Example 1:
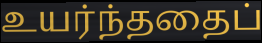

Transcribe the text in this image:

உயர்ந்ததைப்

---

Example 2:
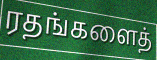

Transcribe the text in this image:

ரதங்களைத்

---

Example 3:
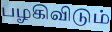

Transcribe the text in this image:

பழகிவிடும்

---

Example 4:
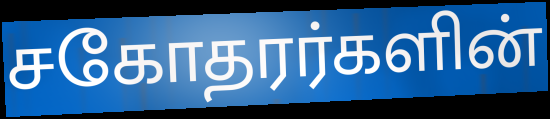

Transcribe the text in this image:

சகோதரர்களின்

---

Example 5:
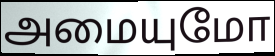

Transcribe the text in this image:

அமையுமோ